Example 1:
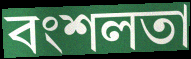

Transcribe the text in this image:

বংশলতা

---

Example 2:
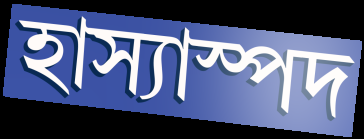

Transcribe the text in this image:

হাস্যাস্পদ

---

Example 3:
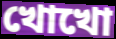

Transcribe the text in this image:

খোখো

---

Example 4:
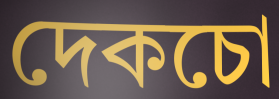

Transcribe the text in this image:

দেকচো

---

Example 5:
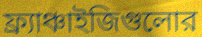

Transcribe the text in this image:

ফ্র্যাঞ্চাইজিগুলোর